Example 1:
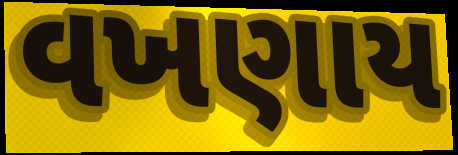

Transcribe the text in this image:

વખણાય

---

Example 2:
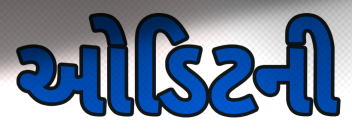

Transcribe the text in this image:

ઓડિટની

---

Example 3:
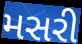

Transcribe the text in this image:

મસરી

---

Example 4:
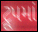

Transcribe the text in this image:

ટ્રૂપમાં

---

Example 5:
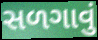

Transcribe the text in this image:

સળગાવું